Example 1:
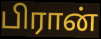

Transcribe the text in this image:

பிரான்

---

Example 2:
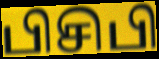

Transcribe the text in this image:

பிசிபி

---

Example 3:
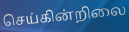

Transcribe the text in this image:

செய்கின்றிலை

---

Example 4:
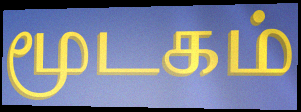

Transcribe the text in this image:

மூடகம்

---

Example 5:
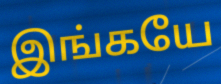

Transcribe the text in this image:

இங்கயே